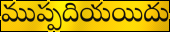
ముప్పదియయిదు